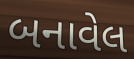
બનાવેલ